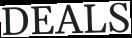
DEALS